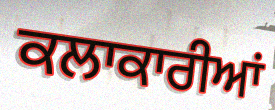
ਕਲਾਕਾਰੀਆਂ